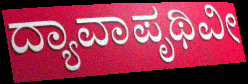
ದ್ಯಾವಾಪೃಥಿವೀ